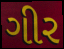
ગીર